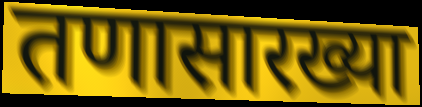
तणासारख्या